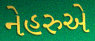
નેહરુએ